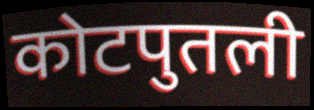
कोटपुतली